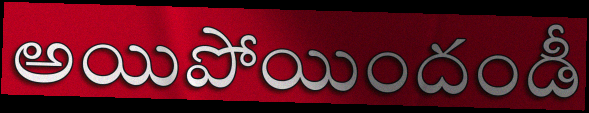
అయిపోయిందండీ